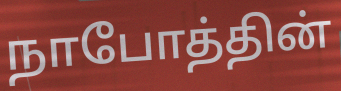
நாபோத்தின்